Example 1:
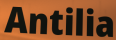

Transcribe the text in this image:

Antilia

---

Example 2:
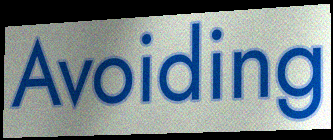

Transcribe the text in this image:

Avoiding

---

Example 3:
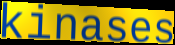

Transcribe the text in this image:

kinases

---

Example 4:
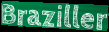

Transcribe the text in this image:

Braziller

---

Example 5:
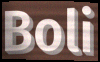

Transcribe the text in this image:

Boli